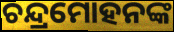
ଚନ୍ଦ୍ରମୋହନଙ୍କ